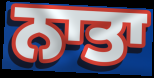
ਨਾਤਾ